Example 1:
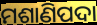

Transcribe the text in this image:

ମଶାଣିପଦା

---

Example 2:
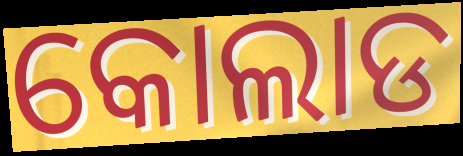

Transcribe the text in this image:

କୋଲାଡ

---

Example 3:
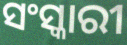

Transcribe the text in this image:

ସଂସ୍କାରୀ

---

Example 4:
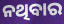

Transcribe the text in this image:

ନଥିବାର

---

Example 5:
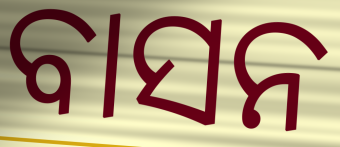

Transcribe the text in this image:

ବାସନ